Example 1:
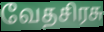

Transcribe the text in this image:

வேதசிரசு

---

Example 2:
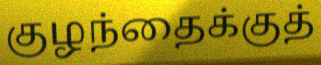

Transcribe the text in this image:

குழந்தைக்குத்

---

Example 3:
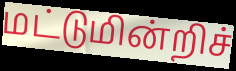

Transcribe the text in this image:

மட்டுமின்றிச்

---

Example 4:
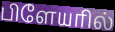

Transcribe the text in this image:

பிளேயரில்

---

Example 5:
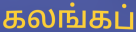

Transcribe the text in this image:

கலங்கப்